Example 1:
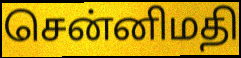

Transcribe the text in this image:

சென்னிமதி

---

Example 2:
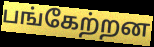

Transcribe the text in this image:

பங்கேற்றன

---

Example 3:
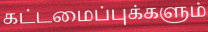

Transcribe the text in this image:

கட்டமைப்புக்களும்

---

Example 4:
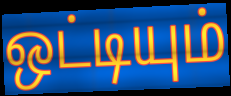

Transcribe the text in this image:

ஒட்டியும்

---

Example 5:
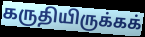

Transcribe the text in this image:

கருதியிருக்கக்